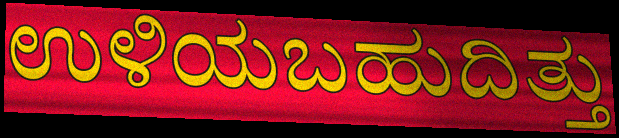
ಉಳಿಯಬಹುದಿತ್ತು